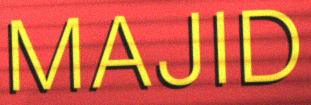
MAJID